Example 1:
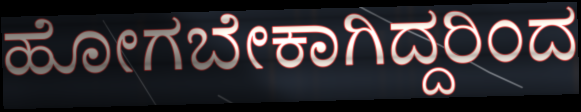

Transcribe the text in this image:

ಹೋಗಬೇಕಾಗಿದ್ದರಿಂದ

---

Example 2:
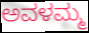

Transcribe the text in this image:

ಅವಳಮ್ಮ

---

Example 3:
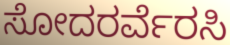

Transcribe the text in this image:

ಸೋದರರ್ವೆರಸಿ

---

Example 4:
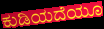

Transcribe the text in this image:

ಕುಡಿಯದೆಯೂ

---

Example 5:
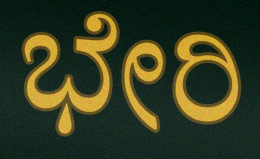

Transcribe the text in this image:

ಭೇರಿ